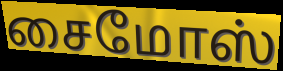
சைமோஸ்